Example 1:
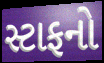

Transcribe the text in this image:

સ્ટાફનો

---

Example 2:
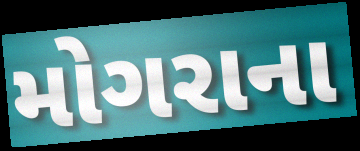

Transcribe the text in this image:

મોગરાના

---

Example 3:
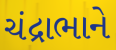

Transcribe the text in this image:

ચંદ્રાભાને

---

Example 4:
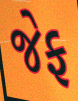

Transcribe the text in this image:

જેફ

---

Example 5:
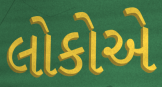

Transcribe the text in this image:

લોકોએ